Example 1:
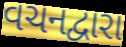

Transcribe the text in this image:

વચનદ્વારા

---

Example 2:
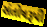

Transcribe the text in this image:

સંતોષરૂપી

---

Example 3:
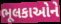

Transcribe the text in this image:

ભૂલકાઓને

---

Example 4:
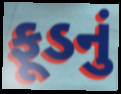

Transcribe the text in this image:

ફૂડનું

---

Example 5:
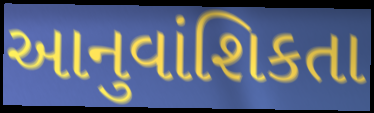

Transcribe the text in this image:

આનુવાંશિકતા